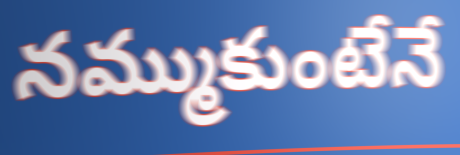
నమ్ముకుంటేనే